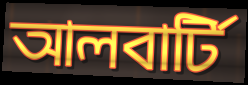
আলবার্টি